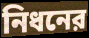
নিধনের